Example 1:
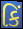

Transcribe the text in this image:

કિં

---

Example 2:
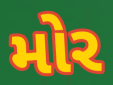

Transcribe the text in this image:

મોર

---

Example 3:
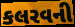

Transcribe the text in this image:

કલરવની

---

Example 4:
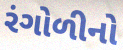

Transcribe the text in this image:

રંગોળીનો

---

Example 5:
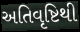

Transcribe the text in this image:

અતિવૃષ્ટિથી